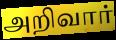
அறிவார்